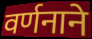
वर्णनाने